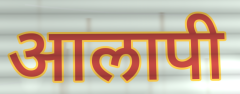
आलापी